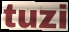
tuzi